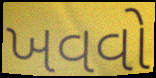
ખવવો